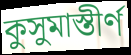
কুসুমাস্তীর্ণ